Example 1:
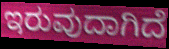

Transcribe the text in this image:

ಇರುವುದಾಗಿದೆ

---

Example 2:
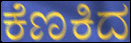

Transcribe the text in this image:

ಕೆಣಕಿದ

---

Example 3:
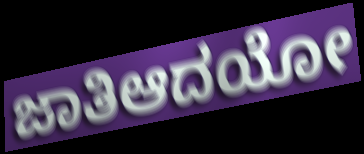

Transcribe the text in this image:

ಜಾತಿಆದಯೋ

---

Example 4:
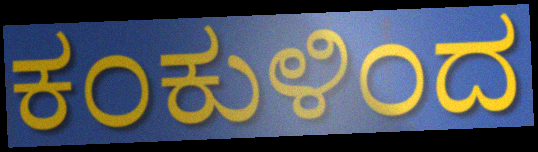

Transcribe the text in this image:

ಕಂಕುಳಿಂದ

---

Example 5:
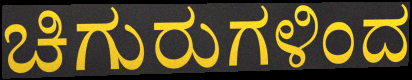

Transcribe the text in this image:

ಚಿಗುರುಗಳಿಂದ